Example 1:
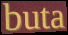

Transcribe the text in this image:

buta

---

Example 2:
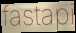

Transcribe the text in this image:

fastapi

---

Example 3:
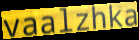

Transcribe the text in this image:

vaalzhka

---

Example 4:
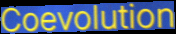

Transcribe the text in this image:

Coevolution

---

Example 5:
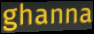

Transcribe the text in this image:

ghanna